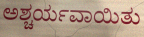
ಅಶ್ಚರ್ಯವಾಯಿತು